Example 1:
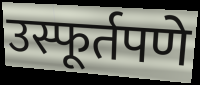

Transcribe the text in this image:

उस्फूर्तपणे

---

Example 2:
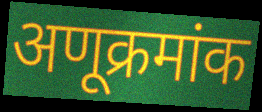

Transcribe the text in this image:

अणूक्रमांक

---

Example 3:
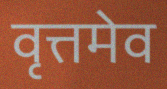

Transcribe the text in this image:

वृत्तमेव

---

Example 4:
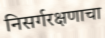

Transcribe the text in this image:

निसर्गरक्षणाचा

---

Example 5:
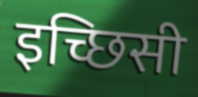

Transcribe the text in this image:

इच्छिसी